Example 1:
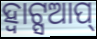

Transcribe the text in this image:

ହ୍ୱାଟ୍ସଆପ୍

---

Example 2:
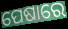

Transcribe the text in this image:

ପେଷାରେ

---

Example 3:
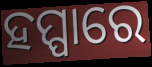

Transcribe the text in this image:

ହପ୍ପାରେ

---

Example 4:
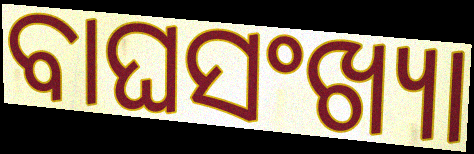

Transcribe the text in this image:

ବାଘସଂଖ୍ୟା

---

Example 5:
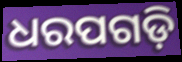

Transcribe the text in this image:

ଧରପଗଡ଼ି